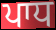
ਪਾਧ